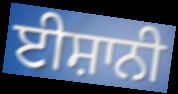
ਈਸ਼ਾਨੀ